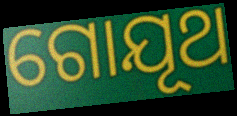
ଗୋଯୂଥ